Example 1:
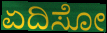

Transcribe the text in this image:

ಏದಿಸೋ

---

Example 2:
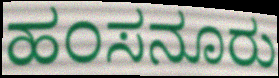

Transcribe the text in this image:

ಹಂಸನೂರು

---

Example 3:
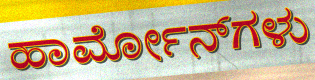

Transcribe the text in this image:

ಹಾರ್ಮೋನ್‌ಗಳು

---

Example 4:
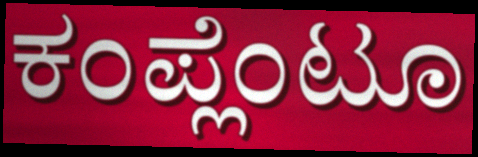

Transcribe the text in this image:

ಕಂಪ್ಲೆಂಟೂ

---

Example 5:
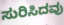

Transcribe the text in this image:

ಸುರಿಸಿದವು